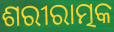
ଶରୀରାତ୍ମକ